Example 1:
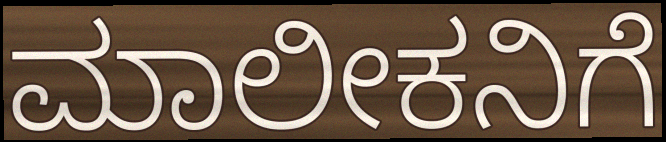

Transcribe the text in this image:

ಮಾಲೀಕನಿಗೆ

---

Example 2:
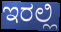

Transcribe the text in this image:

ಇರಲ್ಲಿ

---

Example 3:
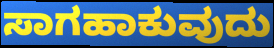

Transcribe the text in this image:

ಸಾಗಹಾಕುವುದು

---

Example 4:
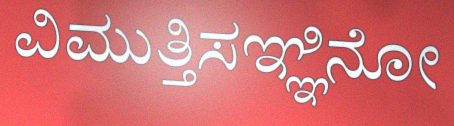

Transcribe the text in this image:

ವಿಮುತ್ತಿಸಞ್ಞಿನೋ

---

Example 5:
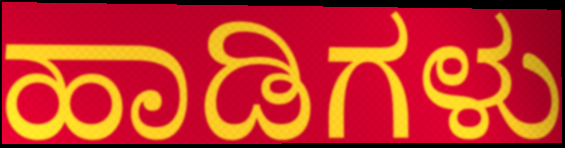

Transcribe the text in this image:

ಹಾಡಿಗಳು